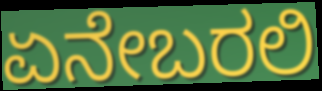
ಏನೇಬರಲಿ